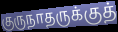
குருநாதருக்குத்